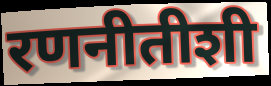
रणनीतीशी